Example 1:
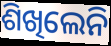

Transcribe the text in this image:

ଶିଖିଲେନି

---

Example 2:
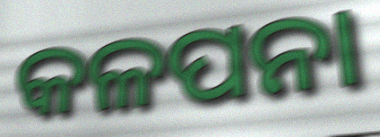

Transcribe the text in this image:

କଳପନା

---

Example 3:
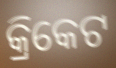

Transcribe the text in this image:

କ୍ରିକେଟ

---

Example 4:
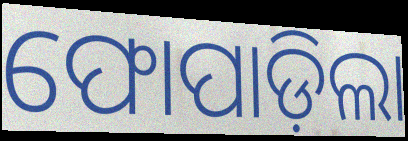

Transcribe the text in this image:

ଫୋପାଡ଼ିଲା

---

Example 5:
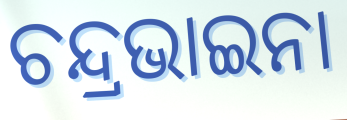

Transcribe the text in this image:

ଚନ୍ଦ୍ରଭାଇନା